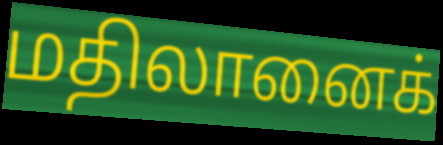
மதிலானைக்